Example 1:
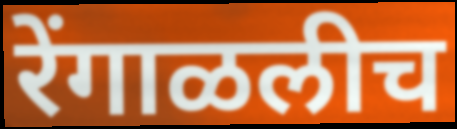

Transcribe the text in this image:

रेंगाळलीच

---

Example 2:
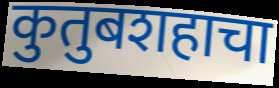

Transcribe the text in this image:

कुतुबशहाचा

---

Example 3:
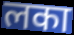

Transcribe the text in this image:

लका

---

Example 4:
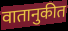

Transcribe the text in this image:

वातानुकीत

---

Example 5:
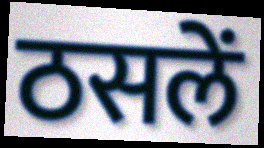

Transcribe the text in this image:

ठसलें